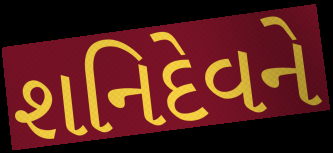
શનિદેવને